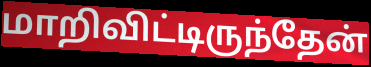
மாறிவிட்டிருந்தேன்